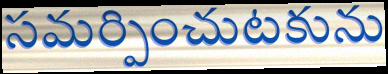
సమర్పించుటకును